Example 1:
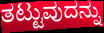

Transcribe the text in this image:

ತಟ್ಟುವುದನ್ನು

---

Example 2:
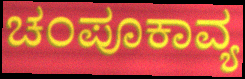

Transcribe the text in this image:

ಚಂಪೂಕಾವ್ಯ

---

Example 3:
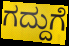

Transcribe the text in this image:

ಗದ್ದುಗೆ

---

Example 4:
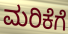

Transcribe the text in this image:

ಮರಿಕೆಗೆ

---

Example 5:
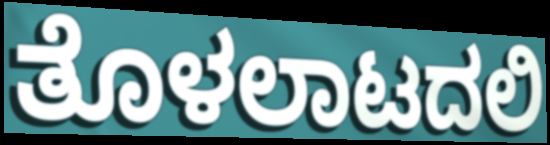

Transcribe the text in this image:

ತೊಳಲಾಟದಲಿ